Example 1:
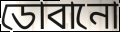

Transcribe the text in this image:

ডোবানো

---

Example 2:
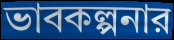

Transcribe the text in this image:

ভাবকল্পনার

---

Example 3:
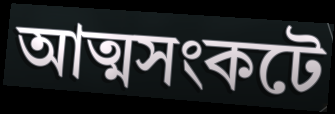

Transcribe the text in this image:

আত্মসংকটে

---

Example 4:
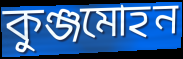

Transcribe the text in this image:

কুঞ্জমোহন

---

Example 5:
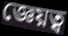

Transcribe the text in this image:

জ্ঞেয়ত্ব